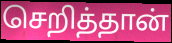
செறித்தான்